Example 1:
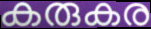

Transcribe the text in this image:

കരുകര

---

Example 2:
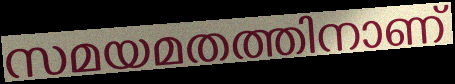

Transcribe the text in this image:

സമയമതത്തിനാണ്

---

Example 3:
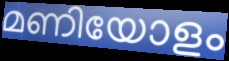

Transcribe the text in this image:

മണിയോളം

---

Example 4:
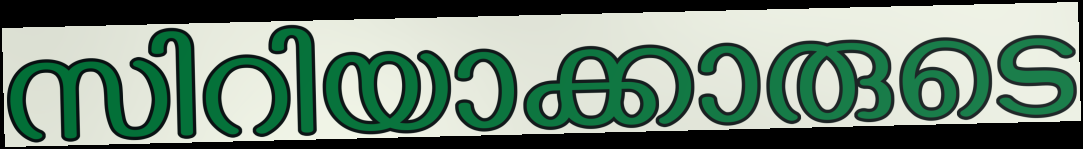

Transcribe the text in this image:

സിറിയാക്കാരുടെ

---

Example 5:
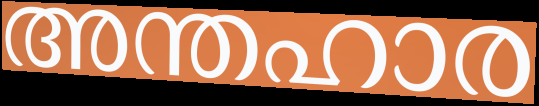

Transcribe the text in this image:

അന്തഹാര